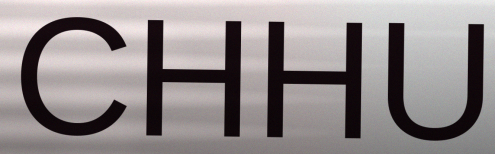
CHHU